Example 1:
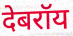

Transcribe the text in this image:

देबरॉय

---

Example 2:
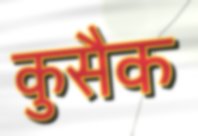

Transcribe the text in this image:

कुसैक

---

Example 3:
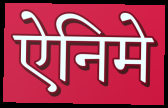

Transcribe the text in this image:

ऐनिमे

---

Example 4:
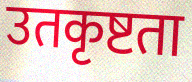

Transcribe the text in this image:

उतकृष्टता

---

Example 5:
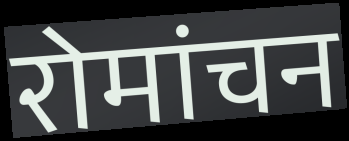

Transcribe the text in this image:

रोमांचन